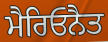
ਮੈਰਿਓਨੈਤ